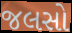
જલસો